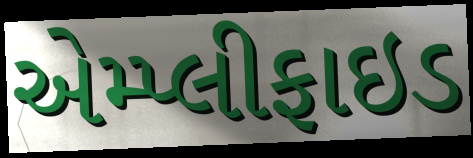
એમ્પ્લીફાઇડ